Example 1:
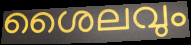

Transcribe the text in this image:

ശൈലവും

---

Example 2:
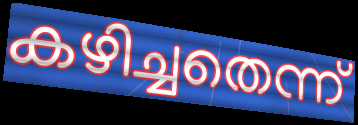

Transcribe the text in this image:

കഴിച്ചതെന്ന്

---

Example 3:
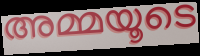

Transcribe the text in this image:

അമ്മയൂടെ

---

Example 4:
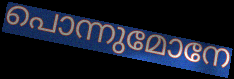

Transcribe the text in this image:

പൊന്നുമോനേ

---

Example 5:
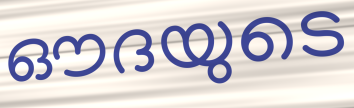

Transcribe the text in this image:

ഔദയുടെ